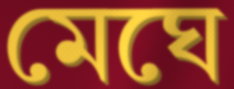
মেঘে